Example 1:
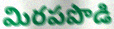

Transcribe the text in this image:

మిరపపొడి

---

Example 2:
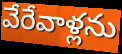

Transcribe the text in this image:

వేరేవాళ్లను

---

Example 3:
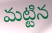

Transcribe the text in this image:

మట్టిన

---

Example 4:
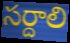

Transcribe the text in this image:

సర్దాలి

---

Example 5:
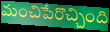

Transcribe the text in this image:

మంచిపేరొచ్చింది